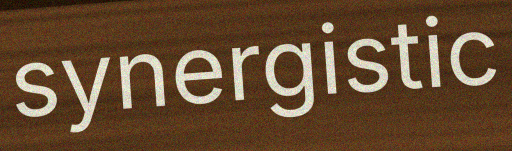
synergistic